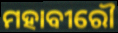
ମହାବୀରୌ